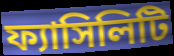
ফ্যাসিলিটি